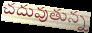
చదువుతున్న